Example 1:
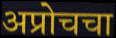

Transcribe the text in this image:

अप्रोचचा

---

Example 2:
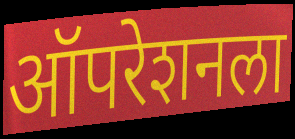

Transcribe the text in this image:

ऑपरेशनला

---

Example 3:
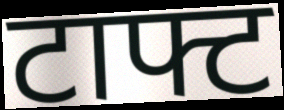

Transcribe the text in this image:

टाफ्ट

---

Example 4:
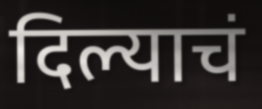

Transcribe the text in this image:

दिल्याचं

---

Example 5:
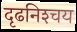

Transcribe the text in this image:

दृढनिश्‍चय